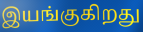
இயங்குகிறது